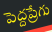
పెద్దప్రేగు